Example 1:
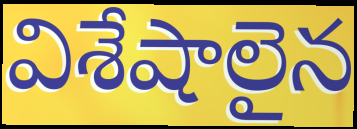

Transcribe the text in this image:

విశేషాలైన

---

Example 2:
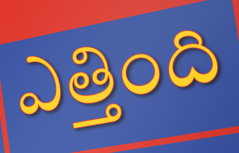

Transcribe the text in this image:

ఎత్తింది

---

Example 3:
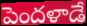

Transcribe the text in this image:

పెందళాడే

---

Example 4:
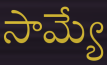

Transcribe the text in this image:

సామ్యే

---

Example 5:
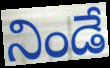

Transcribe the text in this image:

నిండే